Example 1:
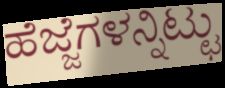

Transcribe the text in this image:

ಹೆಜ್ಜೆಗಳನ್ನಿಟ್ಟು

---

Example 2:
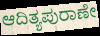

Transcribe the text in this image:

ಆದಿತ್ಯಪುರಾಣೇ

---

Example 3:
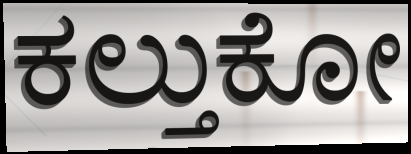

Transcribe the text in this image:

ಕಲ್ತುಕೋ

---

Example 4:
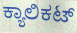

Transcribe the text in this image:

ಕ್ಯಾಲಿಕಟ್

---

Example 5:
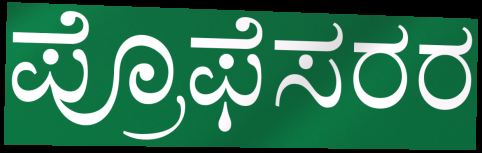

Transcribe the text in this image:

ಪ್ರೊಫೆಸರರ